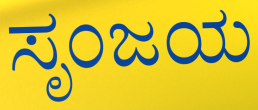
ಸೃಂಜಯ